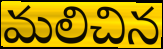
మలిచిన